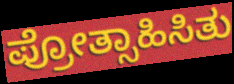
ಪ್ರೋತ್ಸಾಹಿಸಿತು